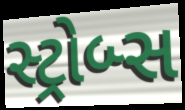
સ્ટ્રોબ્સ